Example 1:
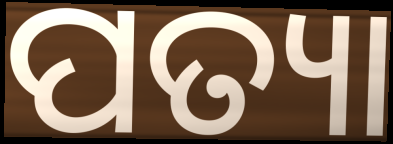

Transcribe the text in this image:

ପତ୍ୟା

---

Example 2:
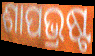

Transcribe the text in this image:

ଶାପଭ୍ରଷ୍ଟ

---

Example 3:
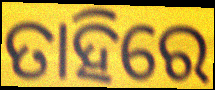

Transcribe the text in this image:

ତାହିରେ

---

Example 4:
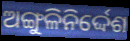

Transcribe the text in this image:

ଅଙ୍ଗୁଳିନିର୍ଦ୍ଦେଶ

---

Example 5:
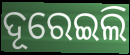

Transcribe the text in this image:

ଦୂରେଇଲି